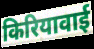
किरियावाई